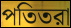
পতিতরা